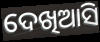
ଦେଖିଆସି